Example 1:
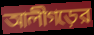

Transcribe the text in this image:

আলীগড়ের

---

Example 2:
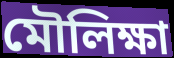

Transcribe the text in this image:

মৌলিক্ষা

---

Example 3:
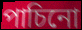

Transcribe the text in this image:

পাচিনো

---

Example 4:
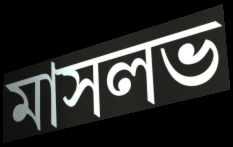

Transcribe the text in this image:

মাসলভ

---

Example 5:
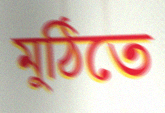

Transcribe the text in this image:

মুঠিতে